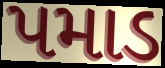
પમાડ